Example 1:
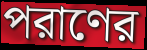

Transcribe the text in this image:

পরাণের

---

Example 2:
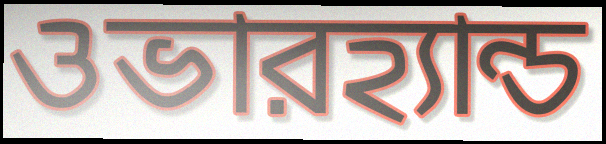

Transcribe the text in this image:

ওভারহ্যান্ড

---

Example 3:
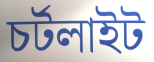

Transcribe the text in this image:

চর্টলাইট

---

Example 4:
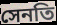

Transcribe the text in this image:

সেনতি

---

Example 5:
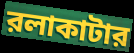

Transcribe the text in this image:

রলাকাটার